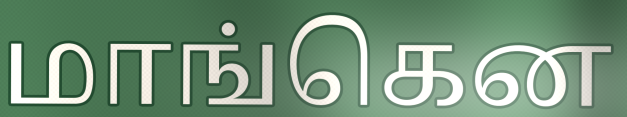
மாங்கென